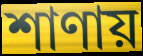
শাণায়